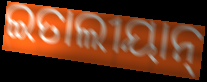
ଇତାଲୀୟାନ୍